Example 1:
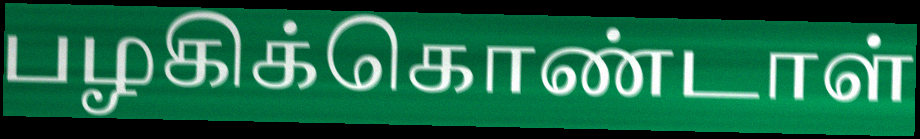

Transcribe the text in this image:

பழகிக்கொண்டாள்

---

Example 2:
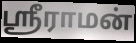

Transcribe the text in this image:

ஸ்ரீராமன்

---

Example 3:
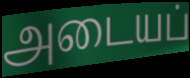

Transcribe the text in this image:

அடையப்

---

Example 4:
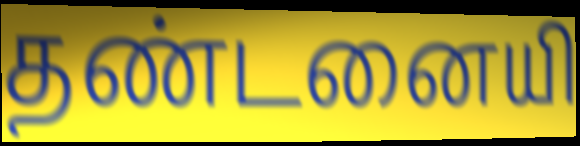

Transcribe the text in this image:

தண்டனையி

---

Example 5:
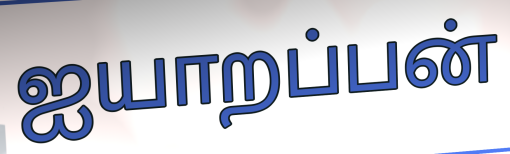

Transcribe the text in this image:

ஐயாறப்பன்